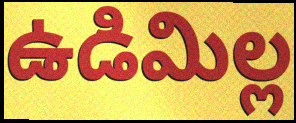
ఉడిమిల్ల